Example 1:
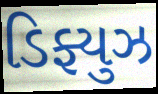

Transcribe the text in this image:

ડિફ્યુઝ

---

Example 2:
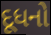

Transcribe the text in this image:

દૂધનો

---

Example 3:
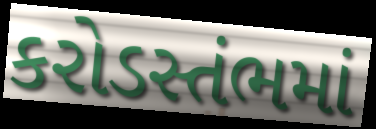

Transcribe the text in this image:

કરોડસ્તંભમાં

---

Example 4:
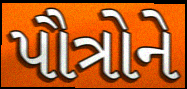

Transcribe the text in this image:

પૌત્રોને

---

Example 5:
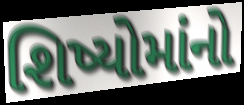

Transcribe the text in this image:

શિષ્યોમાંનો